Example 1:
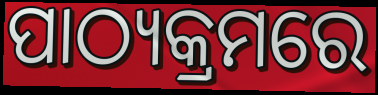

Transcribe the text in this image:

ପାଠ୍ୟକ୍ରମରେ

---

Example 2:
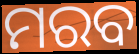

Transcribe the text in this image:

ମରବ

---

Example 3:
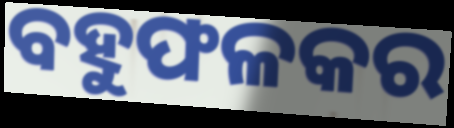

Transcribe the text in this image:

ବହୁଫଳକର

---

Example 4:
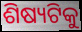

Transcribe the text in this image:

ଶିଷ୍ୟଟିକୁ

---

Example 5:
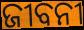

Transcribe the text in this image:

ଜୀବନୀ